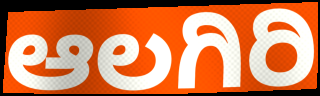
ಆಲಗಿರಿ